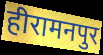
हीरामनपुर